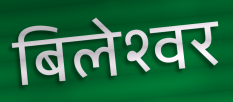
बिलेश्वर